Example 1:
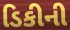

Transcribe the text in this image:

ડિકીની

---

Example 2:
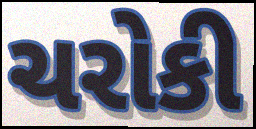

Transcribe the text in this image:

ચરોકી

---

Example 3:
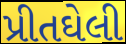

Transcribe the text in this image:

પ્રીતઘેલી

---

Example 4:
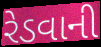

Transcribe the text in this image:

રેડવાની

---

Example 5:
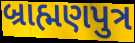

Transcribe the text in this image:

બ્રાહ્મણપુત્ર